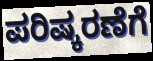
ಪರಿಷ್ಕರಣೆಗೆ